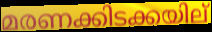
മരണക്കിടക്കയില്